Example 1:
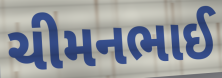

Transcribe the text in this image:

ચીમનભાઈ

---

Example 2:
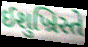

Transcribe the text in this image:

ઈશુખ્રિસ્તે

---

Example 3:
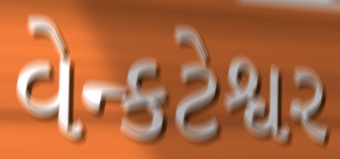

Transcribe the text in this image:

વેન્કટેશ્વર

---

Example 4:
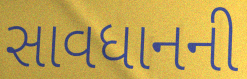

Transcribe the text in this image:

સાવધાનની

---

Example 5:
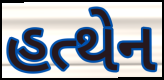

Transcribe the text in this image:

હત્થેન